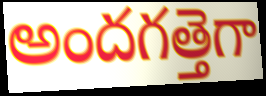
అందగత్తెగా